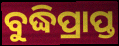
ବୁଦ୍ଧିପ୍ରାପ୍ତ